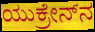
ಯುಕ್ರೇನ್‌ನ